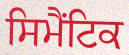
ਸਿਮੈਂਟਿਕ